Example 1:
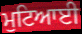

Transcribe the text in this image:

ਮੁਟਿਆਈ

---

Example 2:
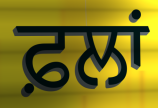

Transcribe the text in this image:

ਫ਼ਲਾਂ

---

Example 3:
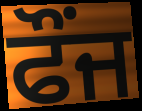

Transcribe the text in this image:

ਫੌਂਜ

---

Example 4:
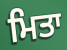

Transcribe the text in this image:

ਮਿਤਾ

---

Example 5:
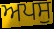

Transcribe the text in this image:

ਅਪਸੁ